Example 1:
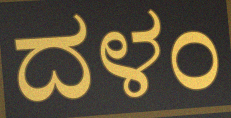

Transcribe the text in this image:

ದಳಂ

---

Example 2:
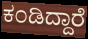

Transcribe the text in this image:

ಕಂಡಿದ್ದಾರೆ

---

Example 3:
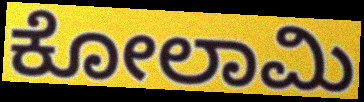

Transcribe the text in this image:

ಕೋಲಾಮಿ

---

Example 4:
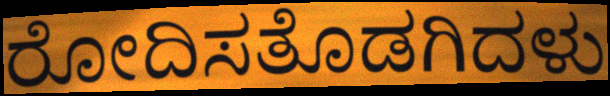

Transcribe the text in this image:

ರೋದಿಸತೊಡಗಿದಳು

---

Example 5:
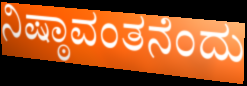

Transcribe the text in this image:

ನಿಷ್ಠಾವಂತನೆಂದು